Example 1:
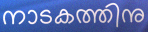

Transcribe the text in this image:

നാടകത്തിനു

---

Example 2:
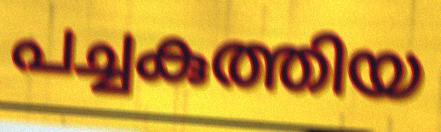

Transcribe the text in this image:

പച്ചകുത്തിയ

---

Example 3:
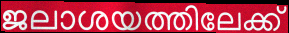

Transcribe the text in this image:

ജലാശയത്തിലേക്ക്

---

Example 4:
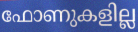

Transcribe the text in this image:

ഫോണുകളില്ല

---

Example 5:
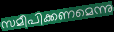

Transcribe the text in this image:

സമീപിക്കണമെന്നു